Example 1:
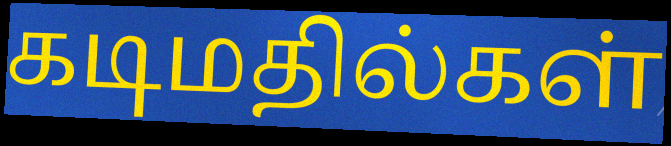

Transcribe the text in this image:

கடிமதில்கள்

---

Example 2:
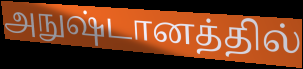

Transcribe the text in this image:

அநுஷ்டானத்தில்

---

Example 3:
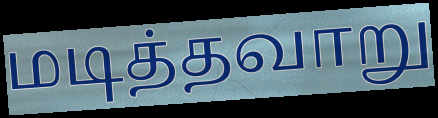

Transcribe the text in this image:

மடித்தவாறு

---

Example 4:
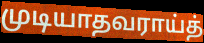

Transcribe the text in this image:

முடியாதவராய்த்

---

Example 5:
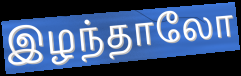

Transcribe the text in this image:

இழந்தாலோ